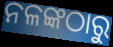
ନଳଙ୍କଠାରୁ